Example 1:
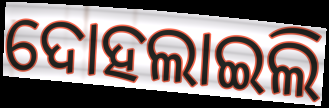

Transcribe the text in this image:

ଦୋହଲାଇଲି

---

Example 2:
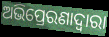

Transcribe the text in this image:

ଅଭିପ୍ରେରଣାଦ୍ୱାରା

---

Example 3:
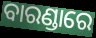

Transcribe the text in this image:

ବାରଣ୍ଡାରେ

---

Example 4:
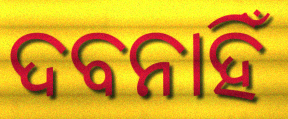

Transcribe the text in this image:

ଦବନାହିଁ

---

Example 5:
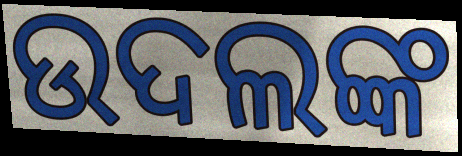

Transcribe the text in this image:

ଉଦଲଙ୍କ